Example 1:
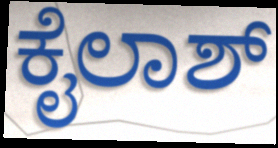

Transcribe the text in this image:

ಕೈಲಾಶ್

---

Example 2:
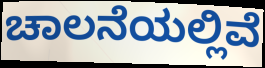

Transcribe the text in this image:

ಚಾಲನೆಯಲ್ಲಿವೆ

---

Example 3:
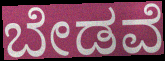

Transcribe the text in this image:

ಬೇಡವೆ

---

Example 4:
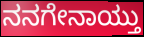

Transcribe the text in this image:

ನನಗೇನಾಯ್ತು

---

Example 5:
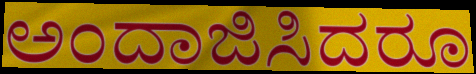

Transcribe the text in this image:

ಅಂದಾಜಿಸಿದರೂ